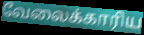
வேலைக்காரிய